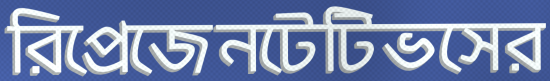
রিপ্রেজেনটেটিভসের